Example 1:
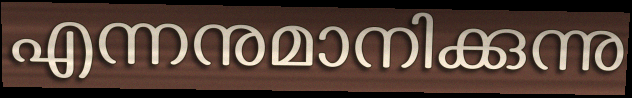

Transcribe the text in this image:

എന്നനുമാനിക്കുന്നു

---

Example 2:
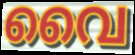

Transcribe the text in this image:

വൈ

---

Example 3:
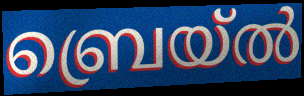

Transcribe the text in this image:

ബ്രെയ്ൽ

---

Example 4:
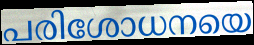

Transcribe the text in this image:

പരിശോധനയെ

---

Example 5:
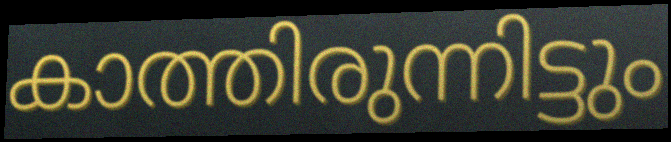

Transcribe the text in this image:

കാത്തിരുന്നിട്ടും